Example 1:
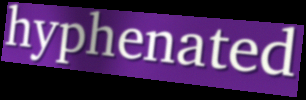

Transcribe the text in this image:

hyphenated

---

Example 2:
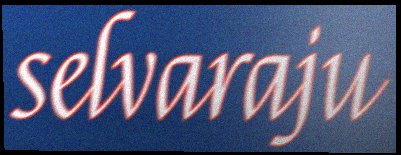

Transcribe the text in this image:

selvaraju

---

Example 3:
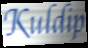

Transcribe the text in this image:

Kuldip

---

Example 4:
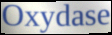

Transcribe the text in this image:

Oxydase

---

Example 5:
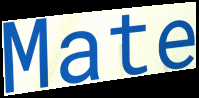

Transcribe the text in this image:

Mate